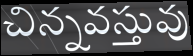
చిన్నవస్తువు